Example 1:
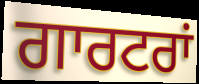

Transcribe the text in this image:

ਗਾਰਟਰਾਂ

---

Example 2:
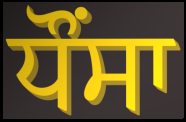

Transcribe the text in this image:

ਧੌਂਸਾ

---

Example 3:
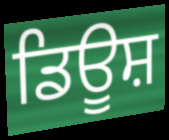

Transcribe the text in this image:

ਡਿਊਸ਼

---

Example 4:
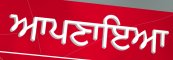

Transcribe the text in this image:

ਆਪਣਾਇਆ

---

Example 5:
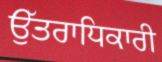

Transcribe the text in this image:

ਉੱਤਰਾਧਿਕਾਰੀ